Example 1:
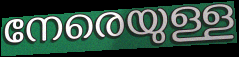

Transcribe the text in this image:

നേരെയുള്ള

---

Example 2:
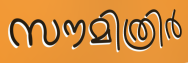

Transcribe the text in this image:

സൗമിത്രിർ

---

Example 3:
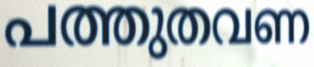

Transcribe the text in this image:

പത്തുതവണ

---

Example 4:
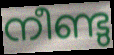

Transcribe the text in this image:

നീണ്ടു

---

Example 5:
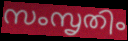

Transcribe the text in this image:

സംസൃതിം